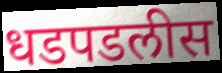
धडपडलीस